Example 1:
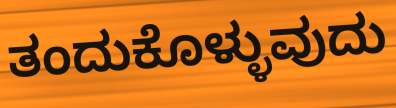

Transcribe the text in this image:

ತಂದುಕೊಳ್ಳುವುದು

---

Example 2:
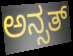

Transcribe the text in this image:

ಅನ್ಸತ್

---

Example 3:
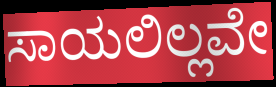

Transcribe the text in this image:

ಸಾಯಲಿಲ್ಲವೇ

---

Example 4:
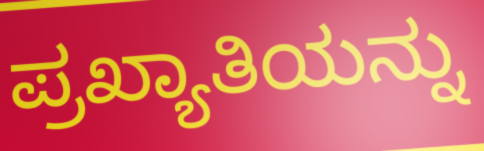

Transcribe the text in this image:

ಪ್ರಖ್ಯಾತಿಯನ್ನು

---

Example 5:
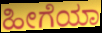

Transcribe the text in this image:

ಹೀಗೆಯಾ